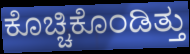
ಕೊಚ್ಚಿಕೊಂಡಿತ್ತು